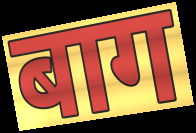
बाग